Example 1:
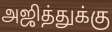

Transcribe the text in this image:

அஜித்துக்கு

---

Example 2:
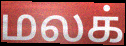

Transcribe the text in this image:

மலக்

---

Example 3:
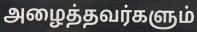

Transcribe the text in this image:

அழைத்தவர்களும்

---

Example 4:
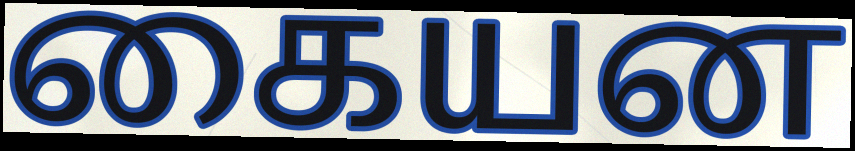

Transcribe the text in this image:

கையன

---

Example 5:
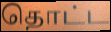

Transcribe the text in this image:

தொட்ட